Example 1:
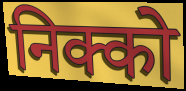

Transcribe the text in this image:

निक्को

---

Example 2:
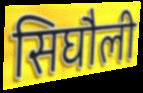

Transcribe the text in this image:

सिघौली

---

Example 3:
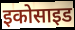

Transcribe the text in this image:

इकोसाइड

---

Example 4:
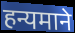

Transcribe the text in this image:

हन्यमाने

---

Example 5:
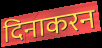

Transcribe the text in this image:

दिनाकरन